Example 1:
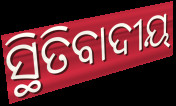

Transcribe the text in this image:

ସ୍ଥିତିବାଦୀୟ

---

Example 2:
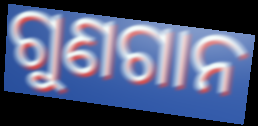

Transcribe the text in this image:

ଗୁଣଗାନ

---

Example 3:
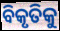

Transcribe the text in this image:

ବିକୃତିକୁ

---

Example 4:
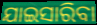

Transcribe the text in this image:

ଯାଇସାରିବା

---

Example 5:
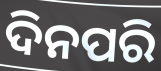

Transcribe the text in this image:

ଦିନପରି